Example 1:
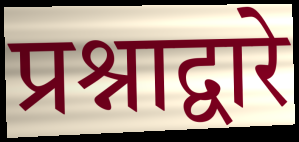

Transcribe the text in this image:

प्रश्नाद्वारे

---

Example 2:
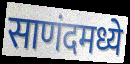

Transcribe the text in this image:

साणंदमध्ये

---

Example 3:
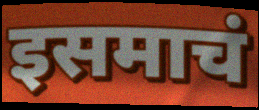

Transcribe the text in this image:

इसमाचं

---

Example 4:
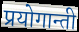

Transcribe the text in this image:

प्रयोगान्ती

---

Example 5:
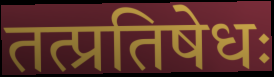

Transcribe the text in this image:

तत्प्रतिषेधः